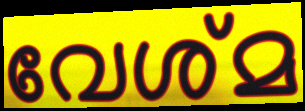
വേശ്മ